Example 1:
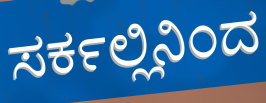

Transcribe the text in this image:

ಸರ್ಕಲ್ಲಿನಿಂದ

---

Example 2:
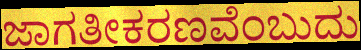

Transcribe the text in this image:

ಜಾಗತೀಕರಣವೆಂಬುದು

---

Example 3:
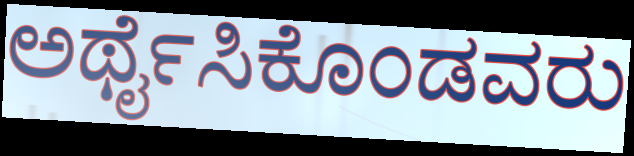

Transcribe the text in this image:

ಅರ್ಥೈಸಿಕೊಂಡವರು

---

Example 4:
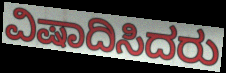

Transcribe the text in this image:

ವಿಷಾದಿಸಿದರು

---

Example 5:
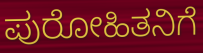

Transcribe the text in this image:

ಪುರೋಹಿತನಿಗೆ